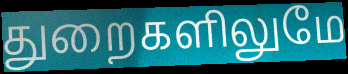
துறைகளிலுமே